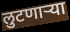
लुटणाऱ्या